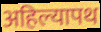
अहिल्यापथ